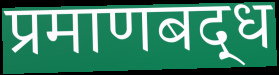
प्रमाणबद्ध